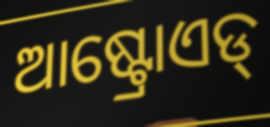
ଆଷ୍ଟ୍ରୋଏଡ୍